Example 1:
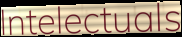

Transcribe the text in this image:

Intelectuals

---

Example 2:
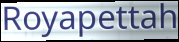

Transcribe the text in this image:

Royapettah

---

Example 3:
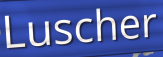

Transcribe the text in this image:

Luscher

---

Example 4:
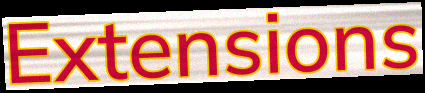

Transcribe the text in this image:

Extensions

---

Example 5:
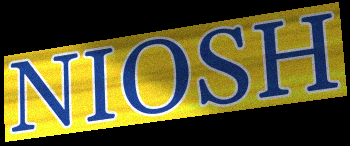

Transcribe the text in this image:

NIOSH